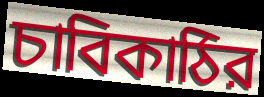
চাবিকাঠির